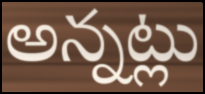
అన్నట్లు